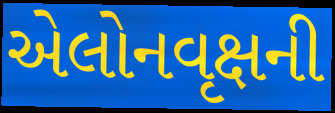
એલોનવૃક્ષની